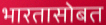
भारतासोबत